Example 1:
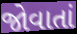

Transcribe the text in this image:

જોવાતાં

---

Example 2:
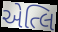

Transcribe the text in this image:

એત્લિ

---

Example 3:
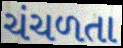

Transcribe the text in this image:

ચંચળતા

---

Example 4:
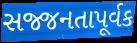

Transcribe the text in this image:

સજ્જનતાપૂર્વક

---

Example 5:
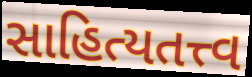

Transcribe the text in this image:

સાહિત્યતત્ત્વ